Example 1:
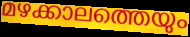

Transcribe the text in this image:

മഴക്കാലത്തെയും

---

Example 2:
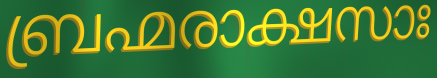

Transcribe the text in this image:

ബ്രഹ്മരാക്ഷസാഃ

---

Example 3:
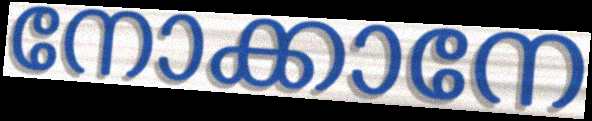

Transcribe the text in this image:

നോക്കാനേ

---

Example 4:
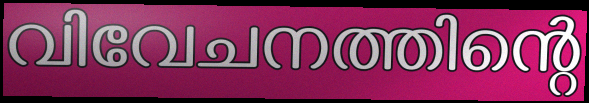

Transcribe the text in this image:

വിവേചനത്തിന്റെ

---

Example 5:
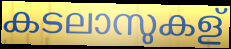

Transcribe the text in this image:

കടലാസുകള്